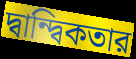
দ্বান্দ্বিকতার